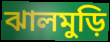
ঝালমুড়ি